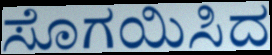
ಸೊಗಯಿಸಿದ